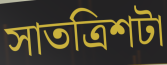
সাতত্ৰিশটা